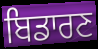
ਬਿਡਾਰਣ